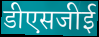
डीएसजीई